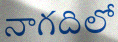
నాగదిలో